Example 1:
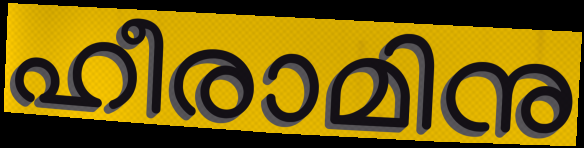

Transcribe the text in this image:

ഹീരാമിനു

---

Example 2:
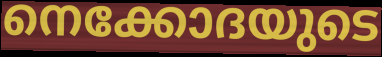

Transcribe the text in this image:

നെക്കോദയുടെ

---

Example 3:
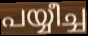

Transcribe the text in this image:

പയ്യീച്ച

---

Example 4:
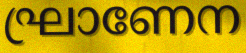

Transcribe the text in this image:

ഘ്രാണേന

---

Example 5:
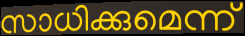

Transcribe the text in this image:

സാധിക്കുമെന്ന്